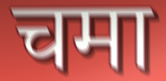
चमा